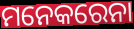
ମନେକରେନା